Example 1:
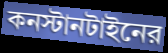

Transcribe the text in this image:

কনস্টানটাইনের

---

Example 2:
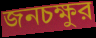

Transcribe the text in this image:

জনচক্ষুর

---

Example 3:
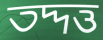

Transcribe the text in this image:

তদ্দত্ত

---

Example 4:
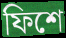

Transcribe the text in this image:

ফিশে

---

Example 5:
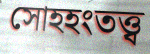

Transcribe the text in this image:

সোহহংতত্ত্ব